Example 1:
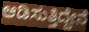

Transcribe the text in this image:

ಆಡಿಸುತ್ತಿದ್ದೇನೆ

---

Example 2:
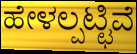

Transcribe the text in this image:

ಹೇಳಲ್ಪಟ್ಟಿವೆ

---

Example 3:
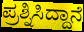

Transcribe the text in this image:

ಪ್ರಶ್ನಿಸಿದ್ದಾನೆ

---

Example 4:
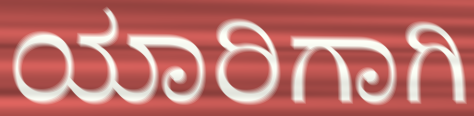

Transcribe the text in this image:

ಯಾರಿಗಾಗಿ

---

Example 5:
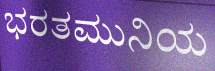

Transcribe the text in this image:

ಭರತಮುನಿಯ